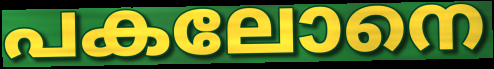
പകലോനെ